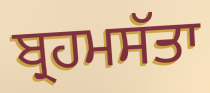
ਬ੍ਰਹਮਸੱਤਾ